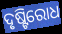
ଦୃଷ୍ଟିରୋଧ